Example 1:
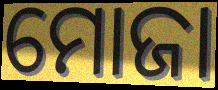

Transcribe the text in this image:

ମୋଜା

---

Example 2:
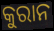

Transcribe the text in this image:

କୁରାନ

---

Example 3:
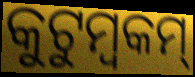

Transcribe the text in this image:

କୁଟୁମ୍ବକମ୍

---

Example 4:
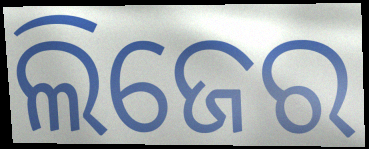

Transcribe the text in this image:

ଲିଜେର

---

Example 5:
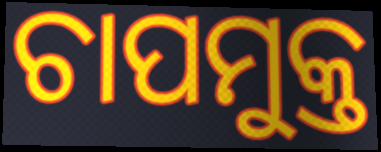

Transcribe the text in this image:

ଚାପମୁକ୍ତ